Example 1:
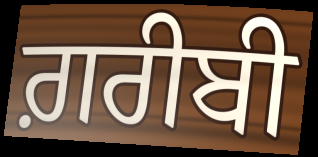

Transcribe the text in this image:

ਗ਼ਰੀਬੀ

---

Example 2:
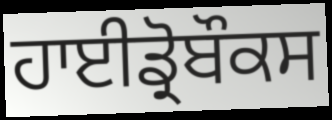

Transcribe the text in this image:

ਹਾਈਡ੍ਰੋਬੌਕਸ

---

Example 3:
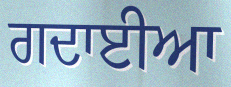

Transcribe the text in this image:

ਗਦਾਈਆ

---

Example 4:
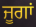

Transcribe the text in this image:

ਜੂਗਾਂ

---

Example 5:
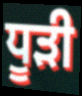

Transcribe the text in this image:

ਧੂੜੀ